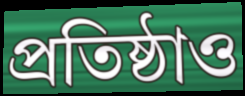
প্রতিষ্ঠাও